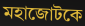
মহাজোটকে